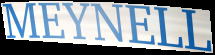
MEYNELL